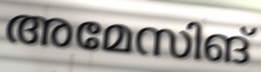
അമേസിങ്